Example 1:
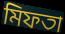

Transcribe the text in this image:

মিফতা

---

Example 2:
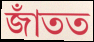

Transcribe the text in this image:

জাঁতত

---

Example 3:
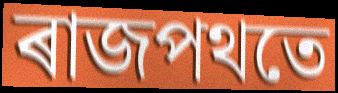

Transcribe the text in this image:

ৰাজপথতে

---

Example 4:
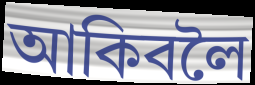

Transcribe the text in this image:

আকিবলৈ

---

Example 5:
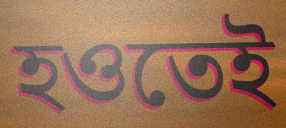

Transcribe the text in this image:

হওতেই